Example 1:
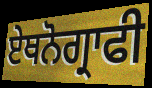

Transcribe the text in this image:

ਏਥਨੋਗ੍ਰਾਫੀ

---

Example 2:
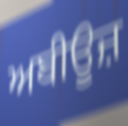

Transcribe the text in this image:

ਅਬੀਊਜ਼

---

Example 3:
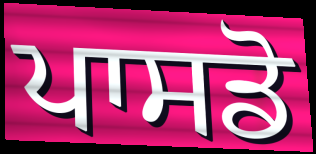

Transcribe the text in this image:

ਪਾਸਡੋ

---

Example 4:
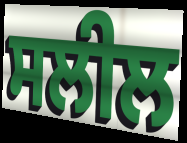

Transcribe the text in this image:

ਸਲੀਲ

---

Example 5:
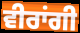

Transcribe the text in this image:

ਵੀਰਾਂਗੀ